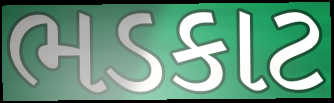
ભડકાટ